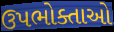
ઉપભોક્તાઓ